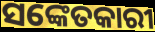
ସଙ୍କେତକାରୀ